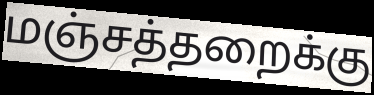
மஞ்சத்தறைக்கு